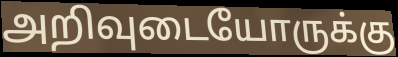
அறிவுடையோருக்கு